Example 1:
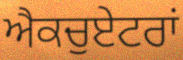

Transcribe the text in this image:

ਐਕਚੁਏਟਰਾਂ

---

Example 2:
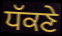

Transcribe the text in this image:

ਧੱਕਣੇ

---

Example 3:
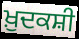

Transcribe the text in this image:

ਖ਼ੁਦਕਸ਼ੀ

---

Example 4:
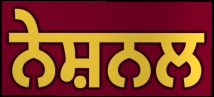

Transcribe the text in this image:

ਨੇਸ਼ਨਲ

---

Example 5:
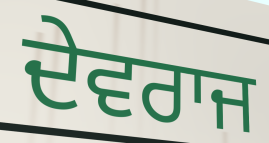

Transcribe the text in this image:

ਦੇਵਰਾਜ